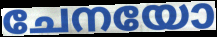
ചേനയോ